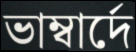
ভাম্বাৰ্দে